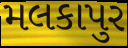
મલકાપુર